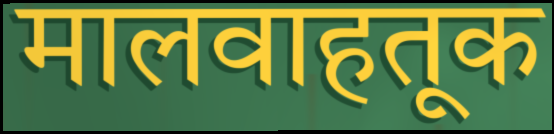
मालवाहतूक